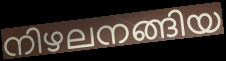
നിഴലനങ്ങിയ